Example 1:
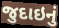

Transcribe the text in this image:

જુદાઇનું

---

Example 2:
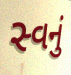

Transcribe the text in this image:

સ્વનું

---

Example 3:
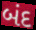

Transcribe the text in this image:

બંદ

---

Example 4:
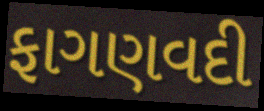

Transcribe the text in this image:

ફાગણવદી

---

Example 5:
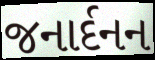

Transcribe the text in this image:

જનાર્દનન